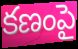
కణంపై